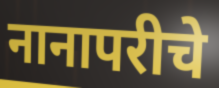
नानापरीचे